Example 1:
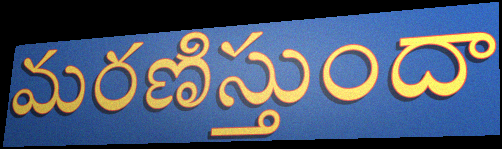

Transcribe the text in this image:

మరణిస్తుందా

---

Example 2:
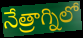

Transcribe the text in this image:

నేత్రాగ్నిలో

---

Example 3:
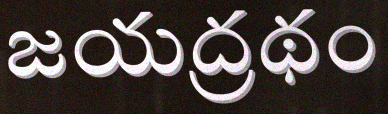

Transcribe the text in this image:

జయద్రథం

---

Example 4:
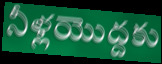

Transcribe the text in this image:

నీళ్లయొద్దకు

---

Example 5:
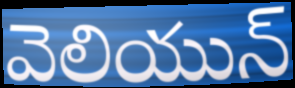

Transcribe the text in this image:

వెలియున్